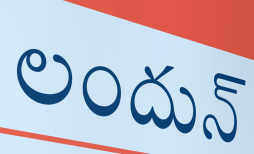
లందున్